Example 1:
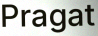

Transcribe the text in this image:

Pragat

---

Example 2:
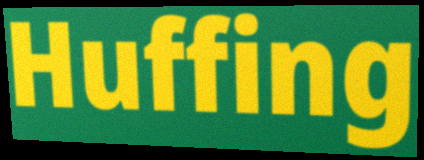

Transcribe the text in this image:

Huffing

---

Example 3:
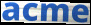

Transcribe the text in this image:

acme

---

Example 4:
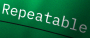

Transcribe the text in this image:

Repeatable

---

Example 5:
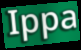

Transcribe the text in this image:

Ippa